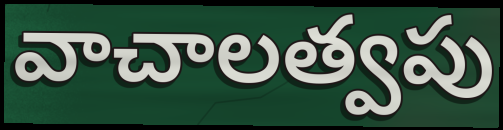
వాచాలత్వపు